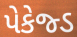
પેકેજ્ડ